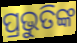
ପ୍ରଭୁତିଙ୍କ